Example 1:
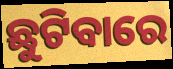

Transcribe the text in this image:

ଛୁଟିବାରେ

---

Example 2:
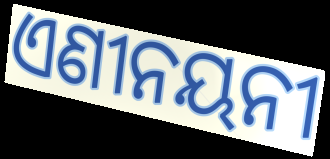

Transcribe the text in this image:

ଏଣୀନୟନୀ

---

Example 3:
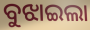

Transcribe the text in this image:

ବୁଝାଇଲା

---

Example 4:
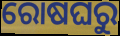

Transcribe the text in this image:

ରୋଷଘରୁ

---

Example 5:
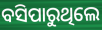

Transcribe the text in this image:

ବସିପାରୁଥିଲେ